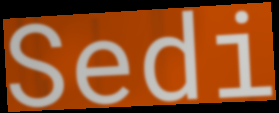
Sedi